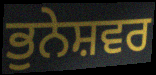
ਭੁਨੇਸ਼ਵਰ